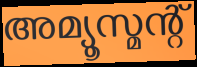
അമ്യൂസ്മന്റ്